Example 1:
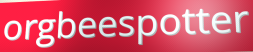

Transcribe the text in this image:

orgbeespotter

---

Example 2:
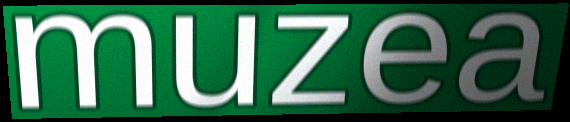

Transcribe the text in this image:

muzea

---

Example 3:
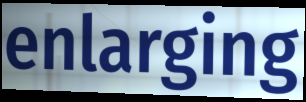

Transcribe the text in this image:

enlarging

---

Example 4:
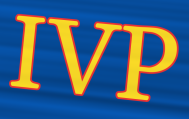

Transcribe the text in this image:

IVP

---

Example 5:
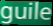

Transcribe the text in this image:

guile